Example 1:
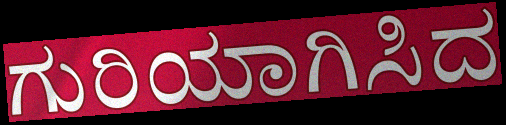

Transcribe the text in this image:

ಗುರಿಯಾಗಿಸಿದ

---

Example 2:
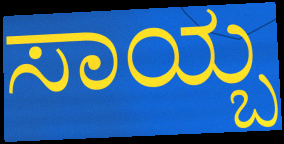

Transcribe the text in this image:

ಸಾಯ್ಬ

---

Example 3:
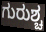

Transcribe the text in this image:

ಗುರುಶ್ಚ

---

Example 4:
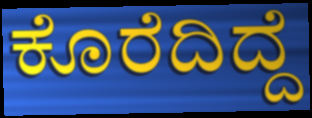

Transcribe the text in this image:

ಕೊರೆದಿದ್ದೆ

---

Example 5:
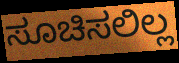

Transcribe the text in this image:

ಸೂಚಿಸಲಿಲ್ಲ